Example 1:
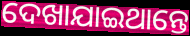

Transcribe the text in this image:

ଦେଖାଯାଇଥାନ୍ତେ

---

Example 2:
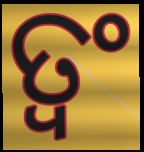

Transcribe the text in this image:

ତ୍ୱଂ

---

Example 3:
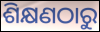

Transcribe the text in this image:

ଶିକ୍ଷଣଠାରୁ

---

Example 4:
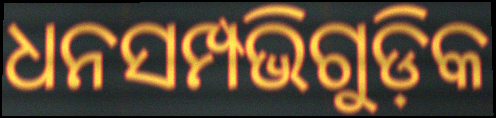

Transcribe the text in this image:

ଧନସମ୍ପଭିଗୁଡ଼ିକ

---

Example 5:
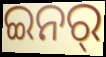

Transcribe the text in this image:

ଇନର୍